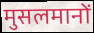
मुसलमानों